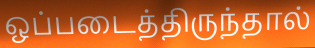
ஒப்படைத்திருந்தால்